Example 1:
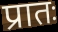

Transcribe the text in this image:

प्रातः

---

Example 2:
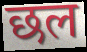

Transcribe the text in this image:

छल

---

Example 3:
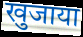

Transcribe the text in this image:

खुजाया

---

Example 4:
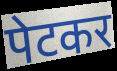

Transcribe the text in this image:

पेटकर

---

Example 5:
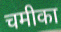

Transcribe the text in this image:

चमीका